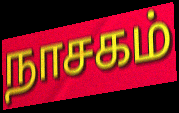
நாசகம்